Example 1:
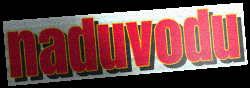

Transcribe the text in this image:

naduvodu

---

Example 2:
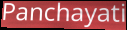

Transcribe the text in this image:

Panchayati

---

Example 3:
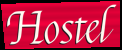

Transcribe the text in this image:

Hostel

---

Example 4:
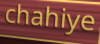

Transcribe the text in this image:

chahiye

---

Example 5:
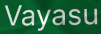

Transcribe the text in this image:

Vayasu